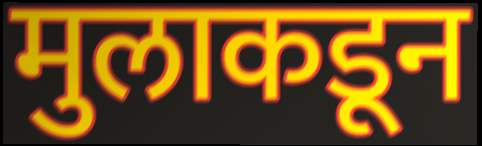
मुलाकडून